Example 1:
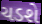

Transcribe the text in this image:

ચડશે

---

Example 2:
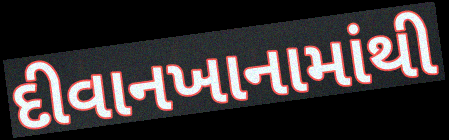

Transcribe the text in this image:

દીવાનખાનામાંથી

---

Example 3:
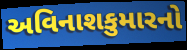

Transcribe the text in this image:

અવિનાશકુમારનો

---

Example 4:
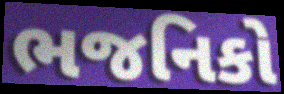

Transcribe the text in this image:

ભજનિકો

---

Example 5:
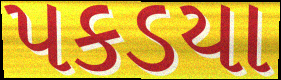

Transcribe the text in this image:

પકડયા